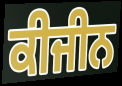
ਕੀਜੀਨ